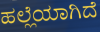
ಹಲ್ಲೆಯಾಗಿದೆ